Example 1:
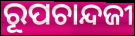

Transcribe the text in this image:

ରୂପଚାନ୍ଦଜୀ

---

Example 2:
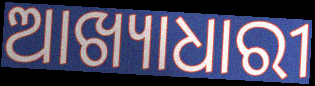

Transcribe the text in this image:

ଆଖ୍ୟାଧାରୀ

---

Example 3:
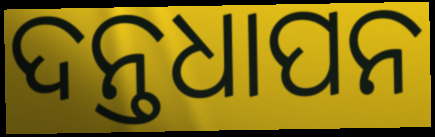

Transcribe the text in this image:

ଦନ୍ତଧାପନ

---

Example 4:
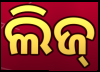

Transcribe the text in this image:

ଲିଜ୍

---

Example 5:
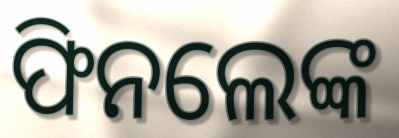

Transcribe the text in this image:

ଫିନଲେଙ୍କ